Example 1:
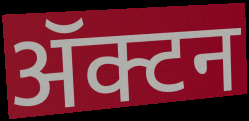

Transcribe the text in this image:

ॲक्टन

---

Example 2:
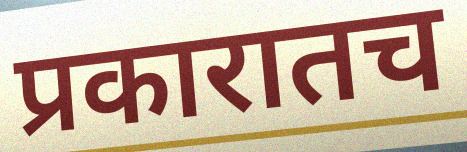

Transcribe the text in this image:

प्रकारातच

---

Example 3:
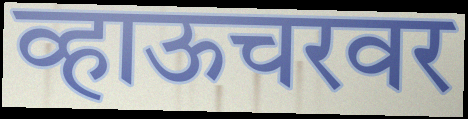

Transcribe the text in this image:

व्हाऊचरवर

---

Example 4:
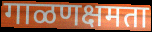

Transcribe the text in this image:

गाळणक्षमता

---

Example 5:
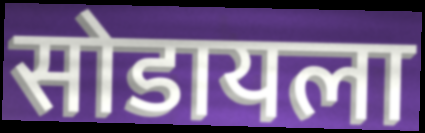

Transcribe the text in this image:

सोडायला